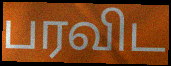
பரவிட